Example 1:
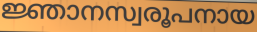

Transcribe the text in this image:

ജ്ഞാനസ്വരൂപനായ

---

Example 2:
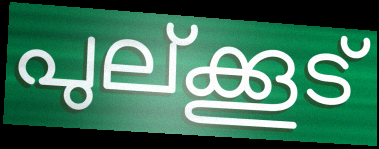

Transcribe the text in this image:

പുല്ക്കൂട്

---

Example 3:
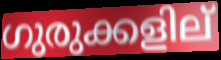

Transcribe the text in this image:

ഗുരുക്കളില്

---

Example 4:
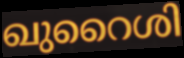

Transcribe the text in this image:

ഖുറൈശി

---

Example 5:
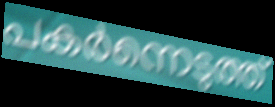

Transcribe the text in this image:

പകർന്നെടുത്ത്